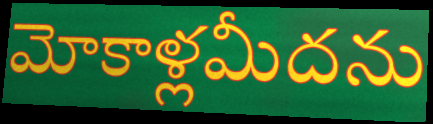
మోకాళ్లమీదను